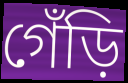
গেঁড়ি